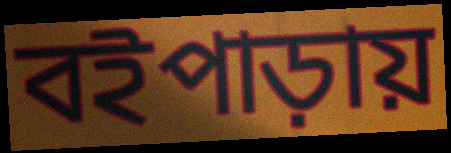
বইপাড়ায়